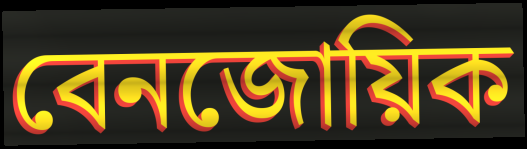
বেনজোয়িক